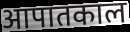
आपातकाल